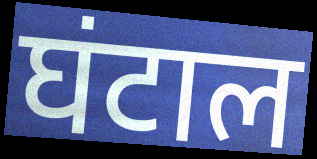
घंटाल